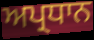
ਅਪ੍ਰਧਾਨ